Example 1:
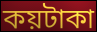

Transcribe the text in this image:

কয়টাকা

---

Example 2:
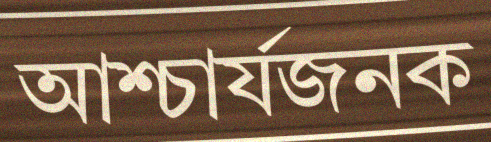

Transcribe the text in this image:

আশ্চার্যজনক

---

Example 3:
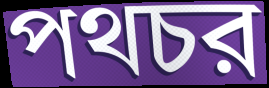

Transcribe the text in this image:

পথচর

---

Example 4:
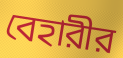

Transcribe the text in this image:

বেহারীর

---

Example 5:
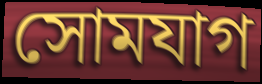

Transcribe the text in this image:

সোমযাগ